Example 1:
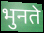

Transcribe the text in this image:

भुनते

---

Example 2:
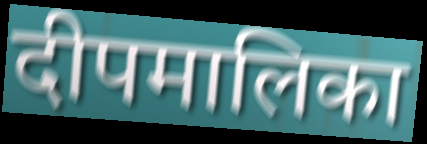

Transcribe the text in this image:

दीपमालिका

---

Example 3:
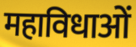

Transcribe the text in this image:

महाविधाओं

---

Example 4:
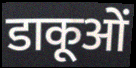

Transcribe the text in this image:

डाकूओं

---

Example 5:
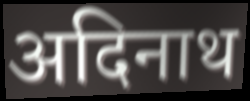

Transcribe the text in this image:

अदिनाथ